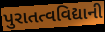
પુરાતત્વવિદ્યાની